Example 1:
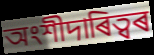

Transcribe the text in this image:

অংশীদাৰিত্বৰ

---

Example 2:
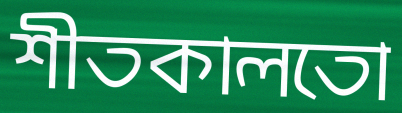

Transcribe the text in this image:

শীতকালতো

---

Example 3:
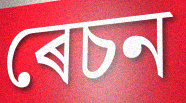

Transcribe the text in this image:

ৰেচন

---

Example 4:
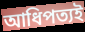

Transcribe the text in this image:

আধিপত্যই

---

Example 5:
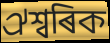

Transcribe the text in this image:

ঐশ্বৰিক